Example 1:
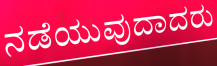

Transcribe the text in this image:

ನಡೆಯುವುದಾದರು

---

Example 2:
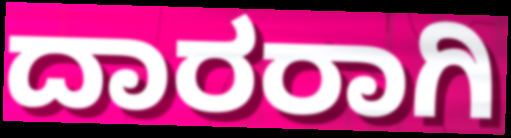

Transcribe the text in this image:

ದಾರರಾಗಿ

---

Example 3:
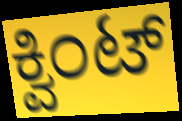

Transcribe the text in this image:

ಕ್ವಿಂಟ್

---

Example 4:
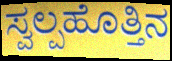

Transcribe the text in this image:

ಸ್ವಲ್ಪಹೊತ್ತಿನ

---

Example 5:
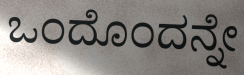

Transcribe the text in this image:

ಒಂದೊಂದನ್ನೇ